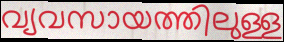
വ്യവസായത്തിലുള്ള